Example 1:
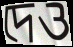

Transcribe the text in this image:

দেও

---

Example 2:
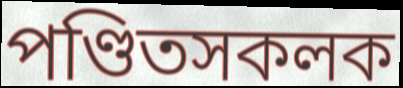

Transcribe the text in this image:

পণ্ডিতসকলক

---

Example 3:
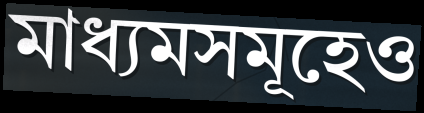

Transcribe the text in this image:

মাধ্য়মসমূহেও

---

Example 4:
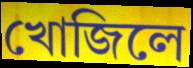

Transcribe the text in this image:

খোজিলে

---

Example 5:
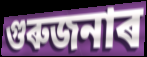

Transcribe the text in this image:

গুৰুজনাৰ